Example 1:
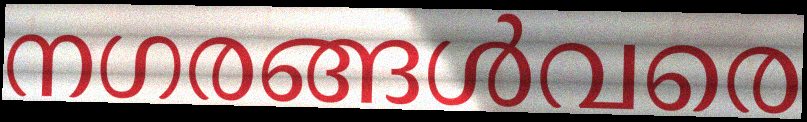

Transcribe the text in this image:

നഗരങ്ങൾവരെ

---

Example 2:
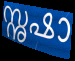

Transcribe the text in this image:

സ്നുഷാ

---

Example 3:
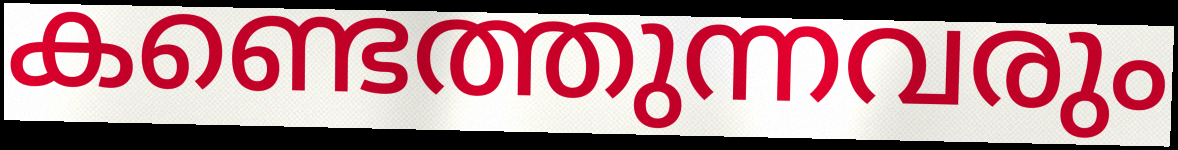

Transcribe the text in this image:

കണ്ടെത്തുന്നവരും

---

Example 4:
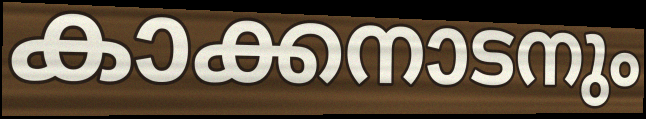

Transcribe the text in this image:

കാക്കനാടനും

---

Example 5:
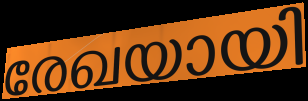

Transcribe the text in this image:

രേഖയായി